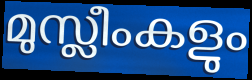
മുസ്ലീംകളും